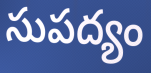
సుపద్యం